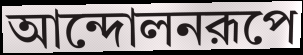
আন্দোলনরূপে